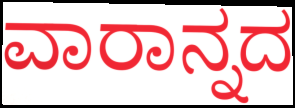
ವಾರಾನ್ನದ